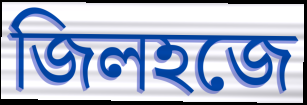
জিলহজে